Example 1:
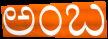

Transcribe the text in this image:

ಅಂಬ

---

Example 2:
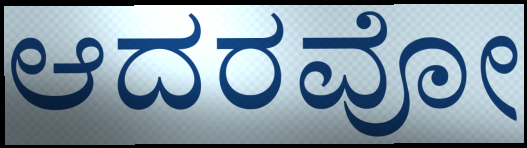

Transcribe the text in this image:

ಆದರವೋ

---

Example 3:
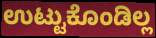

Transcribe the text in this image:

ಉಟ್ಟುಕೊಂಡಿಲ್ಲ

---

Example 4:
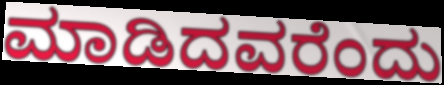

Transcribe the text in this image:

ಮಾಡಿದವರೆಂದು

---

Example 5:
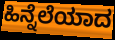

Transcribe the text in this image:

ಹಿನ್ನೆಲೆಯಾದ